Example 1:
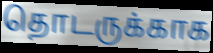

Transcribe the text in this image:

தொடருக்காக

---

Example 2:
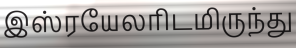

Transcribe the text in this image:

இஸ்ரயேலரிடமிருந்து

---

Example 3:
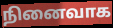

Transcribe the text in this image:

நினைவாக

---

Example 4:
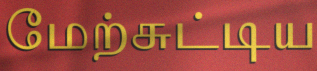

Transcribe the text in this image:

மேற்சுட்டிய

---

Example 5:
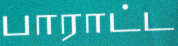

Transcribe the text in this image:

பாராட்ட